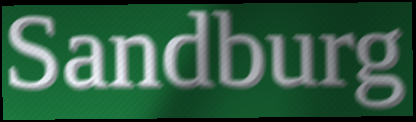
Sandburg